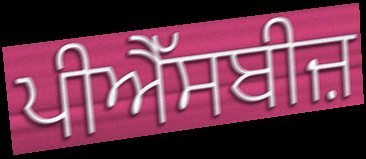
ਪੀਐੱਸਬੀਜ਼